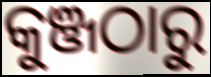
କୁଞ୍ଜଠାରୁ